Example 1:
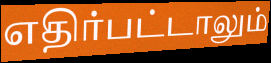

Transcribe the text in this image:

எதிர்பட்டாலும்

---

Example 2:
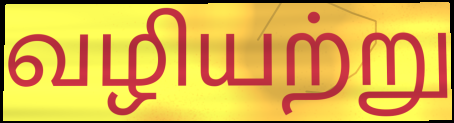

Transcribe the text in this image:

வழியற்று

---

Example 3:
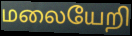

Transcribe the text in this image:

மலையேறி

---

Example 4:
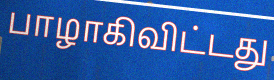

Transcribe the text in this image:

பாழாகிவிட்டது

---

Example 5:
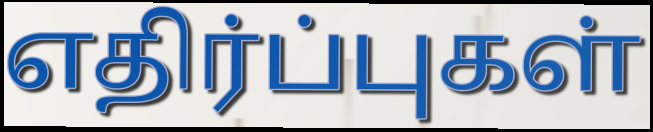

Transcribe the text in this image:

எதிர்ப்புகள்